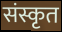
संस्कृत